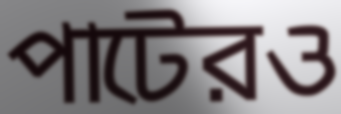
পাটেরও